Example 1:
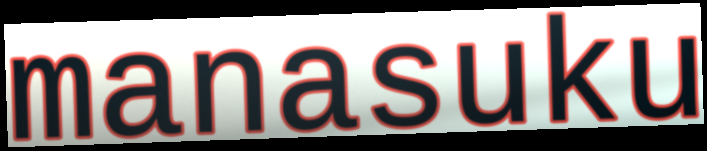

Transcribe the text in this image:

manasuku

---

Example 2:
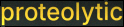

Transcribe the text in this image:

proteolytic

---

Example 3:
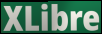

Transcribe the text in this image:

XLibre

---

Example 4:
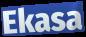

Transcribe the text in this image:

Ekasa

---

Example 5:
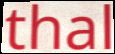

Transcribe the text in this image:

thal